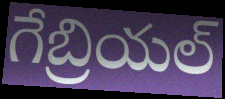
గేబ్రియల్